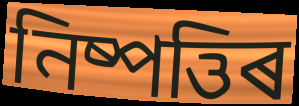
নিষ্পত্তিৰ